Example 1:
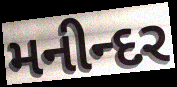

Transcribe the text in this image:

મનીન્દર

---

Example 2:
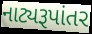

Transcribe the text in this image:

નાટ્યરૂપાંતર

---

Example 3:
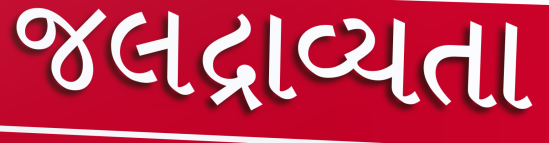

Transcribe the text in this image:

જલદ્રાવ્યતા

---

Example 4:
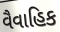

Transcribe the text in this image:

વૈવાહિક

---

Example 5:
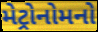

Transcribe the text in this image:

મેટ્રોનોમનો